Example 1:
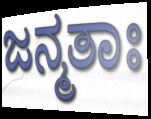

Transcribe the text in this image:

ಜನ್ಮತಾಃ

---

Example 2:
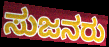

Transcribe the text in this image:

ಸುಜನರು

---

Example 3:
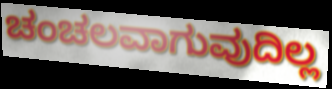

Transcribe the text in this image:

ಚಂಚಲವಾಗುವುದಿಲ್ಲ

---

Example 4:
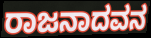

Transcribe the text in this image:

ರಾಜನಾದವನ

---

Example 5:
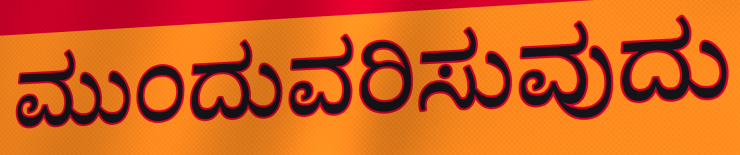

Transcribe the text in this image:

ಮುಂದುವರಿಸುವುದು